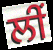
ਲੀਂ